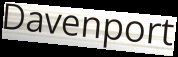
Davenport